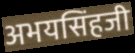
अभयसिंहजी